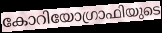
കോറിയോഗ്രാഫിയുടെ